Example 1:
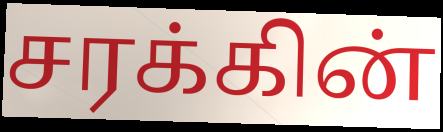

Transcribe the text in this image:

சரக்கின்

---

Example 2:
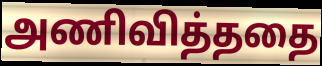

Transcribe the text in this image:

அணிவித்ததை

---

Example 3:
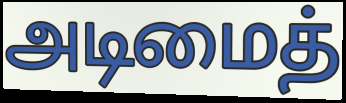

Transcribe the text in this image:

அடிமைத்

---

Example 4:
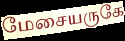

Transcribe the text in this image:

மேசையருகே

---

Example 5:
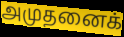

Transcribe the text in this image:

அமுதனைக்